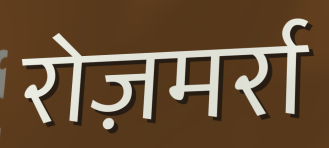
रोज़मर्रा